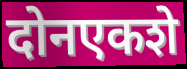
दोनएकशे